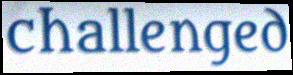
challenged